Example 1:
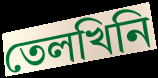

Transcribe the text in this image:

তেলখিনি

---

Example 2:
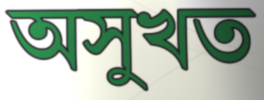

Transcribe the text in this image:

অসুখত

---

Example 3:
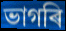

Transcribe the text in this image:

ভাগৰি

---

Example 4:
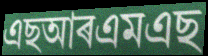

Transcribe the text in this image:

এছআৰএমএছ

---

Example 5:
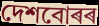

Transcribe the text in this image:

দেশবোৰৰ